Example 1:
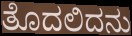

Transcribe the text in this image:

ತೊದಲಿದನು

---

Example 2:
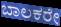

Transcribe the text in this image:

ಬಾಲಕರೇ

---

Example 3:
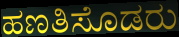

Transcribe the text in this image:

ಹಣತಿಸೊಡರು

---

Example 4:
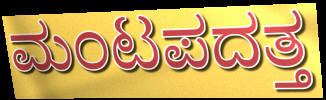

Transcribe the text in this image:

ಮಂಟಪದತ್ತ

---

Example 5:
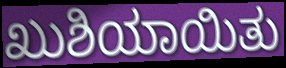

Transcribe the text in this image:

ಖುಶಿಯಾಯಿತು